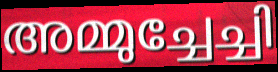
അമ്മുച്ചേച്ചി